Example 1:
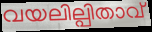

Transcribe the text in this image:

വയലില്പിതാവ്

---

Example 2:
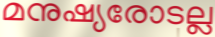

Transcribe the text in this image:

മനുഷ്യരോടല്ല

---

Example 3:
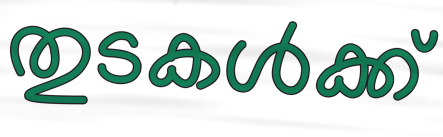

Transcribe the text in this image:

തുടകൾക്ക്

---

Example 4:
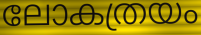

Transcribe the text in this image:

ലോകത്രയം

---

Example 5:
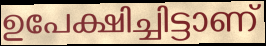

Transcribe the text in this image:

ഉപേക്ഷിച്ചിട്ടാണ്